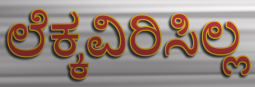
ಲೆಕ್ಕವಿರಿಸಿಲ್ಲ